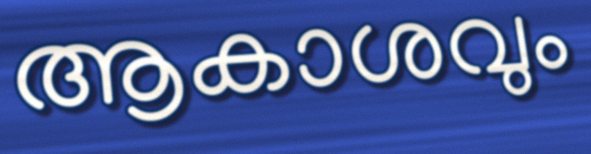
ആകാശവും